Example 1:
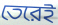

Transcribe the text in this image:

তেরেই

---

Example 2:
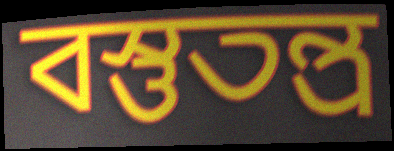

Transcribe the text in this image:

বস্তুতন্ত্র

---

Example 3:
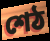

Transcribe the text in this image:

শেঠ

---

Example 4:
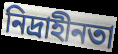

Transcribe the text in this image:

নিদ্রাহীনতা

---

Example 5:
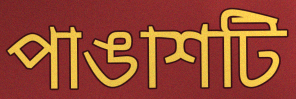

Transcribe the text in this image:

পাঙাশটি